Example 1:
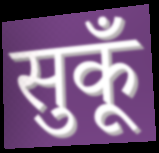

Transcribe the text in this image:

सुकूँ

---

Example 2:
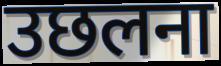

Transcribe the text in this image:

उछलना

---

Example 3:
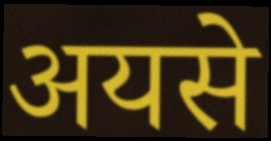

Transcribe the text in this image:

अयसे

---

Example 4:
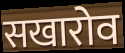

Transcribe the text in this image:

सखारोव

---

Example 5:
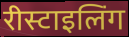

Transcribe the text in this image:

रीस्टाइलिंग